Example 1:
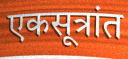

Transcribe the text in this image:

एकसूत्रांत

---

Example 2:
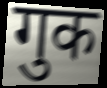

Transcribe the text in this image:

गुक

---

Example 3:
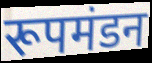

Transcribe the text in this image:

रूपमंडन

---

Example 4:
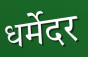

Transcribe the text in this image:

धर्मेदर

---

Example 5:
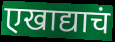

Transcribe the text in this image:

एखाद्याचं